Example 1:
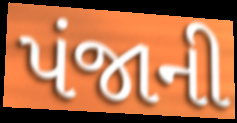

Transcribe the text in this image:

પંજાની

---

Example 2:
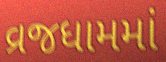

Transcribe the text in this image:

વ્રજધામમાં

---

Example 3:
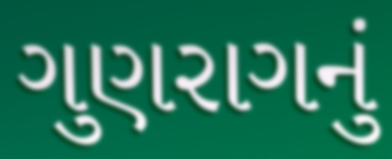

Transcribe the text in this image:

ગુણરાગનું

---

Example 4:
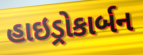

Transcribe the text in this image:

હાઇડ્રોકાર્બન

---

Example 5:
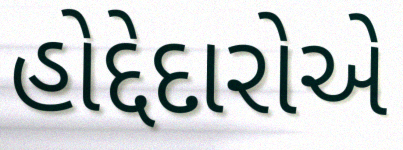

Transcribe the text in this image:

હોદ્દેદારોએ